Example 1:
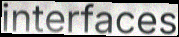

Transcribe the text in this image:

interfaces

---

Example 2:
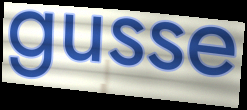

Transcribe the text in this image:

gusse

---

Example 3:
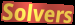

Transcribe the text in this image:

Solvers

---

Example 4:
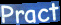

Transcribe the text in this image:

Pract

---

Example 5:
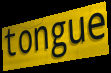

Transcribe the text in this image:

tongue